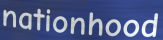
nationhood